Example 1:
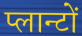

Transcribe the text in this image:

प्लान्टों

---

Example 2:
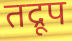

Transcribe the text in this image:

तद्रूप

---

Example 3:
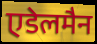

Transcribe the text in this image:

एडेलमैन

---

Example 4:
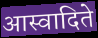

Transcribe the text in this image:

आस्वादिते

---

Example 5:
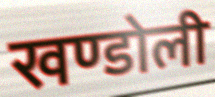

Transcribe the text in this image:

खण्डोली